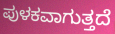
ಪುಳಕವಾಗುತ್ತದೆ